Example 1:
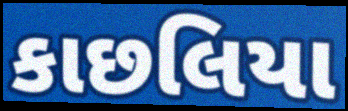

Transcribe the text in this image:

કાછલિયા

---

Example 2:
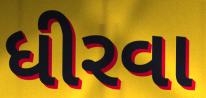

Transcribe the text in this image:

ધીરવા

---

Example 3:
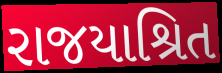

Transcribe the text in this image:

રાજયાશ્રિત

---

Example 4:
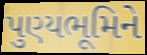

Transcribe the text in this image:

પુણ્યભૂમિને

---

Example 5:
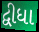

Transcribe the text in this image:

દ્વીધા